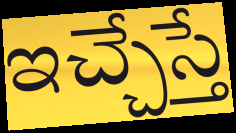
ఇచ్చేస్తే